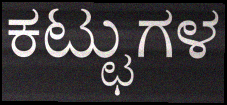
ಕಟ್ಟುಗಳ